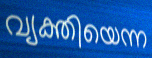
വ്യക്തിയെന്ന